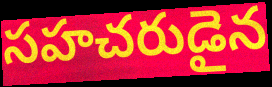
సహచరుడైన